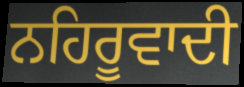
ਨਹਿਰੂਵਾਦੀ